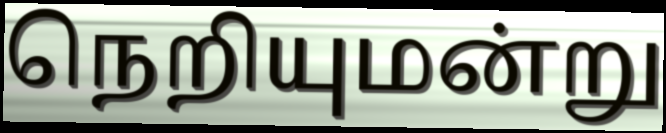
நெறியுமன்று